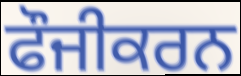
ਫੌਜੀਕਰਨ